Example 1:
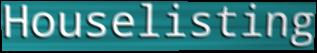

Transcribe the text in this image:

Houselisting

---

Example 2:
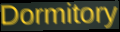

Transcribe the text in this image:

Dormitory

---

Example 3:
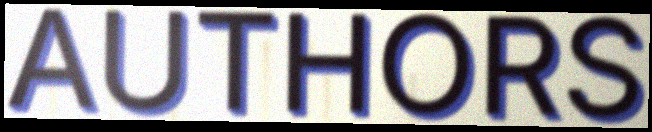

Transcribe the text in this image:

AUTHORS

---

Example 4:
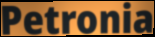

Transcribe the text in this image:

Petronia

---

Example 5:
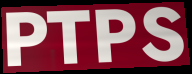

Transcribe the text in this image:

PTPS